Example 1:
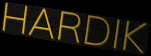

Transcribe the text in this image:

HARDIK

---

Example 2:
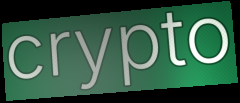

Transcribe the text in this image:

crypto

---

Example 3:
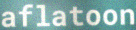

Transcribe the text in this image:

aflatoon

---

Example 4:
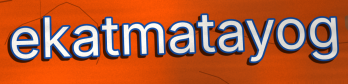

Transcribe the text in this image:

ekatmatayog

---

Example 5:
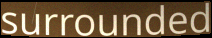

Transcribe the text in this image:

surrounded